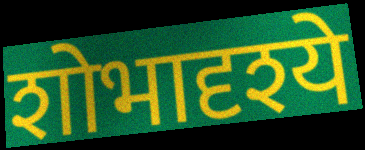
शोभादृश्ये